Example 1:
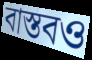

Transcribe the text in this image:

বাস্তবও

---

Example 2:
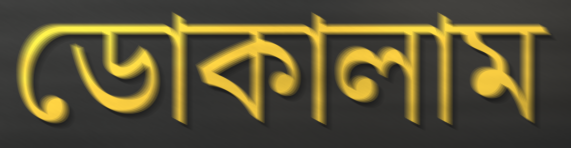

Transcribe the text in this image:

ডোকালাম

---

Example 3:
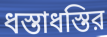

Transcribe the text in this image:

ধস্তাধস্তির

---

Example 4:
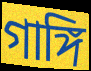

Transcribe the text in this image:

গাঙ্গি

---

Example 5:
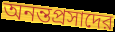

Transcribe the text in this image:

অনন্তপ্রসাদের